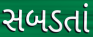
સબડતાં